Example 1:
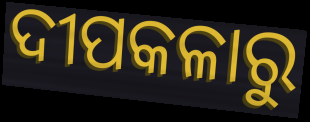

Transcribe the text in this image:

ଦୀପକଳାରୁ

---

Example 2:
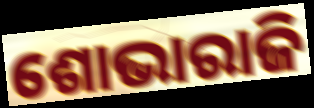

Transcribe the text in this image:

ଶୋଭାରାଜି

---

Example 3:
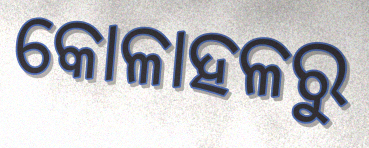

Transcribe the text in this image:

କୋଳାହଳରୁ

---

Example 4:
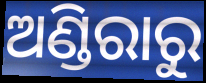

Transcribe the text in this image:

ଅଣ୍ଡିରାରୁ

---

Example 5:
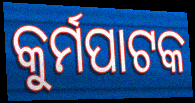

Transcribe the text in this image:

କୁର୍ମପାଟକ